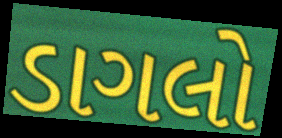
ડાગલો